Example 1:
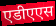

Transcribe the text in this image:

एडीएएस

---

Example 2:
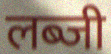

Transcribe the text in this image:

लब्जी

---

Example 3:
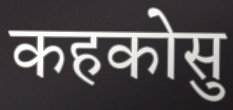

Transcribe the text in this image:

कहकोसु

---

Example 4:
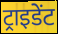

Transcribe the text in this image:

ट्राइडेंट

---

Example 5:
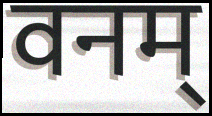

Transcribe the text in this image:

वनम्